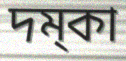
দম্‌কা